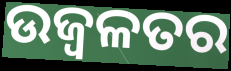
ଉଜ୍ବଳତର